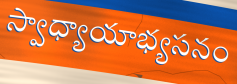
స్వాధ్యాయాభ్యసనం